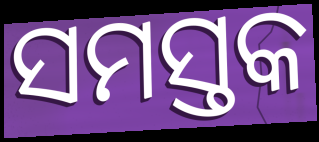
ସମସ୍ତକ